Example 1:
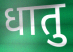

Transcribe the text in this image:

धातु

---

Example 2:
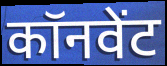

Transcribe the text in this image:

कॉनवेंट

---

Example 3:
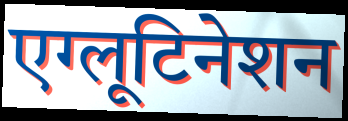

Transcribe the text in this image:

एग्लूटिनेशन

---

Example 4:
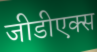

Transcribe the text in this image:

जीडीएक्स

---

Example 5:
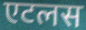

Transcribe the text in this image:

एटलस